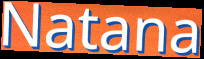
Natana